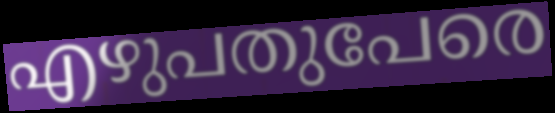
എഴുപതുപേരെ